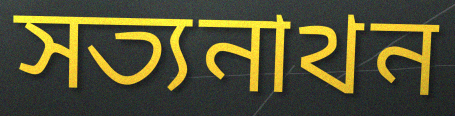
সত্যনাথন